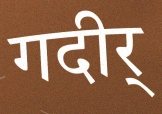
गदीर्